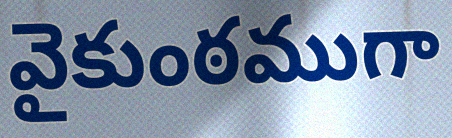
వైకుంఠముగా